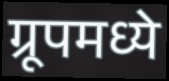
ग्रूपमध्ये